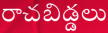
రాచబిడ్డలు